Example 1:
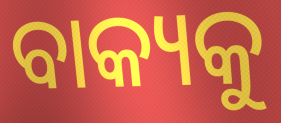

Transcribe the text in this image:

ବାକ୍ୟକୁ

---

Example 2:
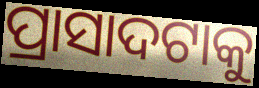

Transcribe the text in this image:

ପ୍ରାସାଦଟାକୁ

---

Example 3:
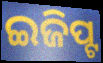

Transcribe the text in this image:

ଇଜିପ୍ଟ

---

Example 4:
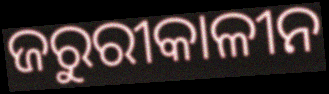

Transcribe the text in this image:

ଜରୁରୀକାଳୀନ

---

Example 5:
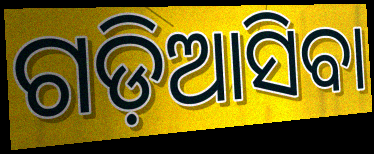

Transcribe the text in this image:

ଗଡ଼ିଆସିବା